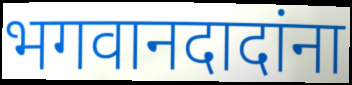
भगवानदादांना